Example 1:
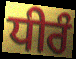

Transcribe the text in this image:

ਧੀਰੰ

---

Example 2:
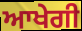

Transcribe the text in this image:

ਆਖੇਗੀ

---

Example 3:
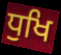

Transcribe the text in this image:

ਧੁਖਿ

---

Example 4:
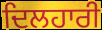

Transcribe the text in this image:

ਦਿਲਹਾਰੀ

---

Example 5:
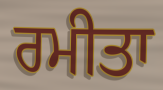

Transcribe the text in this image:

ਰਮੀਤਾ